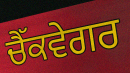
ਚੈੱਕਵੇਗਰ